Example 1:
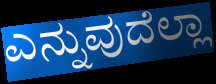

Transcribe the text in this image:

ಎನ್ನುವುದೆಲ್ಲಾ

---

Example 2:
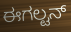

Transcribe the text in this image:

ಈಗಲ್ಟನ್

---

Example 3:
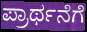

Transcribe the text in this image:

ಪ್ರಾರ್ಥನೆಗೆ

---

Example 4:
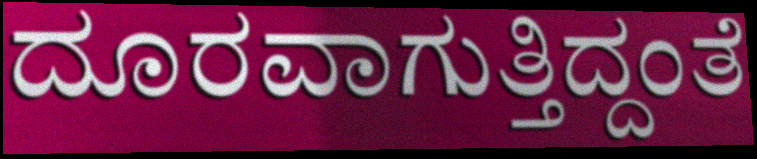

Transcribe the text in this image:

ದೂರವಾಗುತ್ತಿದ್ದಂತೆ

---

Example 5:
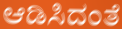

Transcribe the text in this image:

ಆಡಿಸಿದಂತೆ